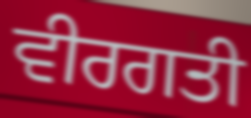
ਵੀਰਗਤੀ